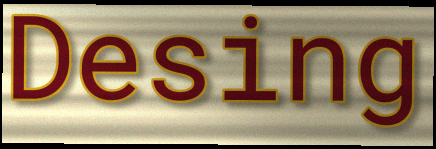
Desing